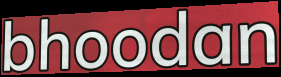
bhoodan